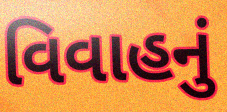
વિવાહનું